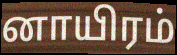
னாயிரம்